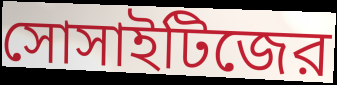
সোসাইটিজের